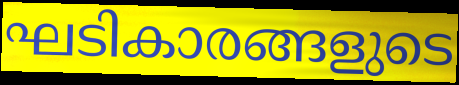
ഘടികാരങ്ങളുടെ